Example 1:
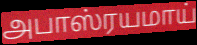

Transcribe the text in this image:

அபாஸ்ரயமாய்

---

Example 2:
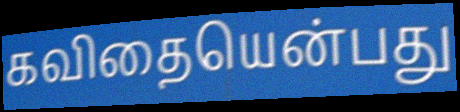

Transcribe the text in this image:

கவிதையென்பது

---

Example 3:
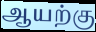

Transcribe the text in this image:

ஆயற்கு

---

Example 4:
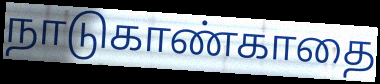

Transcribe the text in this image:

நாடுகாண்காதை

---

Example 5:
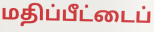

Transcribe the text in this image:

மதிப்பீட்டைப்